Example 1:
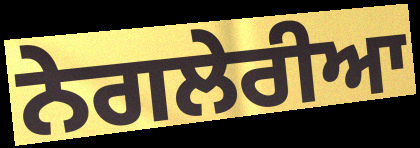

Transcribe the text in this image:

ਨੇਗਲੇਰੀਆ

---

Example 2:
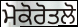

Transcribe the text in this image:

ਮੋਕੋਰੋਤਲੋ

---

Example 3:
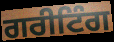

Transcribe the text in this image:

ਗਰੀਟਿੰਗ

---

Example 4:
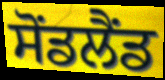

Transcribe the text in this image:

ਸੋਂਡਲੈਂਡ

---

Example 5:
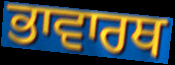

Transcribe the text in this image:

ਭਾਵਾਰਥ